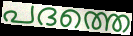
പദത്തെ